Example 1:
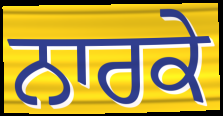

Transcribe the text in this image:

ਨਾਰਕੇ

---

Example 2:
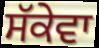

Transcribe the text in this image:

ਸੱਕੇਵਾ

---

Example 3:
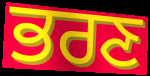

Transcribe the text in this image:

ਭਰਣ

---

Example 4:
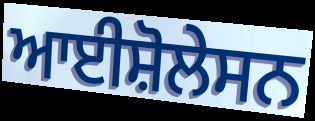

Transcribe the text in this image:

ਆਈਸ਼ੋਲੇਸਨ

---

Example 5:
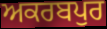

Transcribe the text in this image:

ਅਕਰਬਪੁਰ